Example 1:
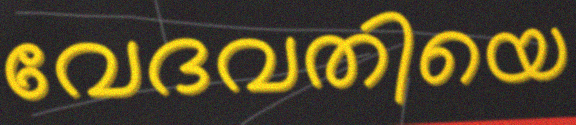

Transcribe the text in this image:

വേദവതിയെ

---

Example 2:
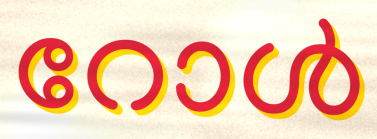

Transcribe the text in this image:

റോൾ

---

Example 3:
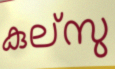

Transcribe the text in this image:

കുല്സു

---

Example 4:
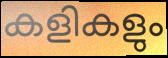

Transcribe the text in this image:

കളികളും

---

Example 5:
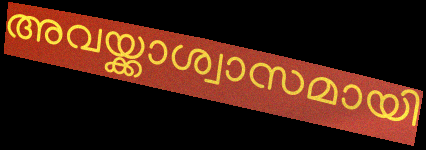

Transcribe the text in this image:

അവയ്ക്കാശ്വാസമായി